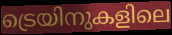
ട്രെയിനുകളിലെ